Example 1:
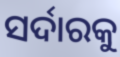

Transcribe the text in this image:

ସର୍ଦାରକୁ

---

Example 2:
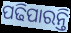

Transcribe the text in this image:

ପଢିପାରନ୍ତି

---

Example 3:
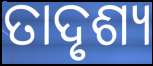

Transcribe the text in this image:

ତାଦୃଶ୍ୟ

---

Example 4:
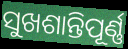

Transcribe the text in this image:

ସୁଖଶାନ୍ତିପୂର୍ଣ୍ଣ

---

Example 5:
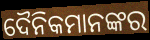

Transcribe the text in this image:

ଦୈନିକମାନଙ୍କର